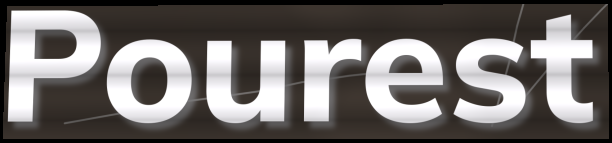
Pourest